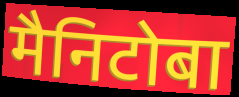
मैनिटोबा